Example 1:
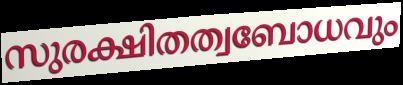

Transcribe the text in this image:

സുരക്ഷിതത്വബോധവും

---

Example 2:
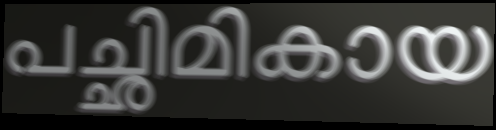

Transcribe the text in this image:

പച്ഛിമികായ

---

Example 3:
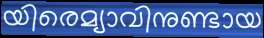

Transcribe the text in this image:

യിരെമ്യാവിനുണ്ടായ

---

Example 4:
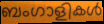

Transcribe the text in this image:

ബംഗാളികൾ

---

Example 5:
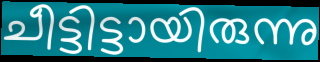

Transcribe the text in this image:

ചീട്ടിട്ടായിരുന്നു